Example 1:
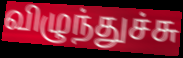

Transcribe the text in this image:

விழுந்துச்சு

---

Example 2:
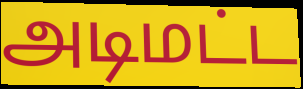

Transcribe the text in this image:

அடிமட்ட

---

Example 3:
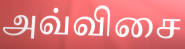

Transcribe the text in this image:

அவ்விசை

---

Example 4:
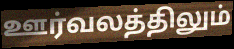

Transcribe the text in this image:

ஊர்வலத்திலும்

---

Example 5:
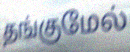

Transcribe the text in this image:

தங்குமேல்